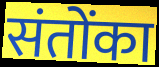
संतोंका